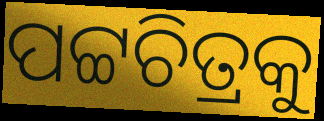
ପଟ୍ଟଚିତ୍ରକୁ